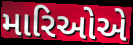
મારિઓએ